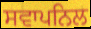
ਸਵਾਪਨਿਲ